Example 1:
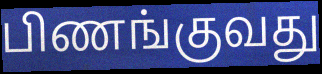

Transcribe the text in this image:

பிணங்குவது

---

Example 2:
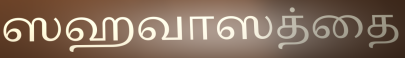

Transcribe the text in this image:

ஸஹவாஸத்தை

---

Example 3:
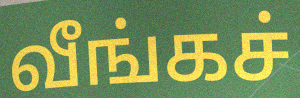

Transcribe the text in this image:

வீங்கச்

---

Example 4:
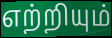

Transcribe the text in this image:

எற்றியும்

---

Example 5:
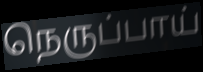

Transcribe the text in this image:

நெருப்பாய்